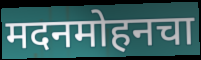
मदनमोहनचा